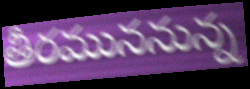
తీరముననున్న